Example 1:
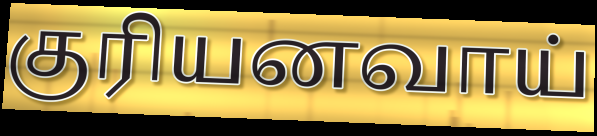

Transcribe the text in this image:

குரியனவாய்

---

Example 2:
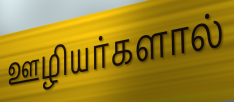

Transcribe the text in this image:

ஊழியர்களால்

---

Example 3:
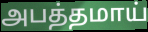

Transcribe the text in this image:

அபத்தமாய்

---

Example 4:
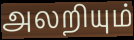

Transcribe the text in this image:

அலறியும்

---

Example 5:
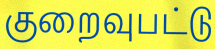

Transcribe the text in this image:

குறைவுபட்டு